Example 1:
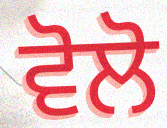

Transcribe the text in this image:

ਵੋਲੋ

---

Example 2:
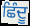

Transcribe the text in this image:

ਛਿੰਦੂ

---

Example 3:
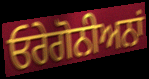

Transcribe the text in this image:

ਓਰੇਗੋਨੀਅਨਾਂ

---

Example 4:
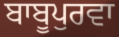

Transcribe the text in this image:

ਬਾਬੂਪੁਰਵਾ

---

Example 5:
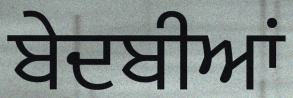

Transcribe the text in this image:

ਬੇਦਬੀਆਂ